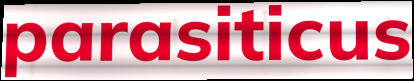
parasiticus